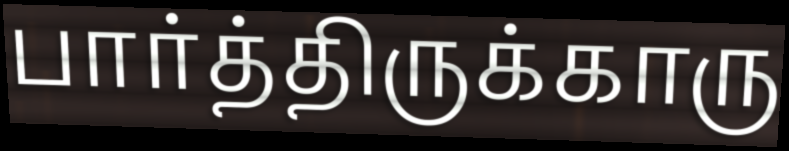
பார்த்திருக்காரு